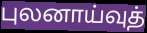
புலனாய்வுத்